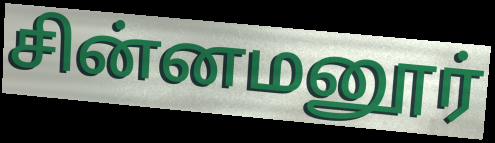
சின்னமனூர்